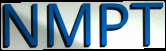
NMPT